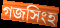
গজসিংহ